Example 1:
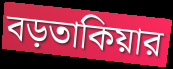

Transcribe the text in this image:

বড়তাকিয়ার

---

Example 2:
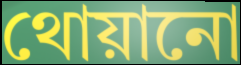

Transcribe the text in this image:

থোয়ানো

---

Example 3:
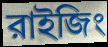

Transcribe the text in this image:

রাইজিং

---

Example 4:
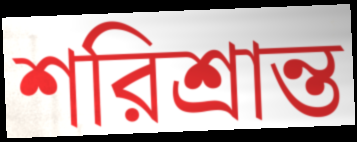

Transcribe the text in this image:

শরিশ্রান্ত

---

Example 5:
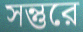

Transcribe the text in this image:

সন্তুরে